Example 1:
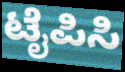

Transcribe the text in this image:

ಟೈಪಿಸಿ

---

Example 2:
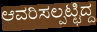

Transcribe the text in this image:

ಆವರಿಸಲ್ಪಟ್ಟಿದ್ದ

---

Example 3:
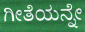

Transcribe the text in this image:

ಗೀತೆಯನ್ನೇ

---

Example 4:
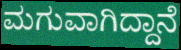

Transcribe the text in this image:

ಮಗುವಾಗಿದ್ದಾನೆ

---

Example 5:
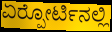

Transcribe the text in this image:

ಏರ್‍ಪೋರ್ಟಿನಲ್ಲಿ